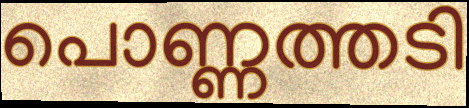
പൊണ്ണത്തടി